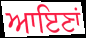
ਆਇਣਾਂ